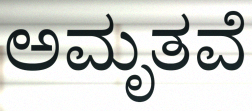
ಅಮೃತವೆ